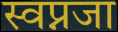
स्वप्नजा